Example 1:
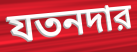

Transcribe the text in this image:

যতনদার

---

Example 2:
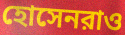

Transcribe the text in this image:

হোসেনরাও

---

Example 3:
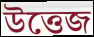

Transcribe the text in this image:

উত্তেজ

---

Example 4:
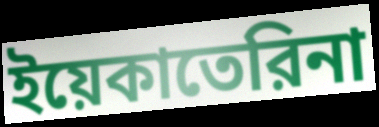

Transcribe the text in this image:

ইয়েকাতেরিনা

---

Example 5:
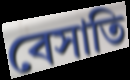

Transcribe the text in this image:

বেসাতি